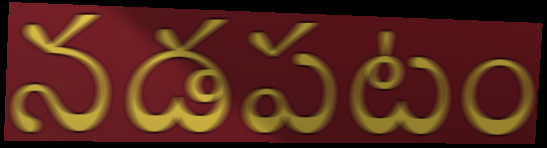
నడపటం